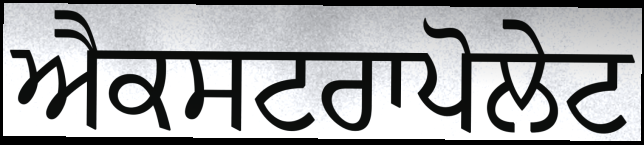
ਐਕਸਟਰਾਪੋਲੇਟ